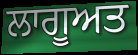
ਲਾਗੂਅਤ